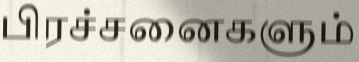
பிரச்சனைகளும்